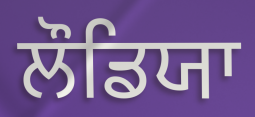
ਲੌਡਿਯਾ